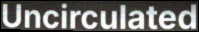
Uncirculated